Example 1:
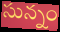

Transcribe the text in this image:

సున్నం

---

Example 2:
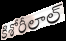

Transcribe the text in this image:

కిశోరీలాల్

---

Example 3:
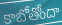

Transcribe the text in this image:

కాబోతోందా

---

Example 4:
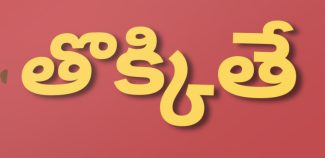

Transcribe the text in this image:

తొక్కితే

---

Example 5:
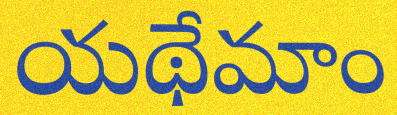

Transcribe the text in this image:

యథేమాం